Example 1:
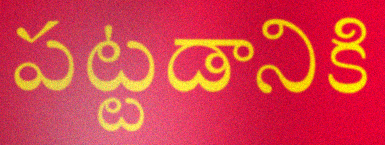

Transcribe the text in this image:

పట్టడానికి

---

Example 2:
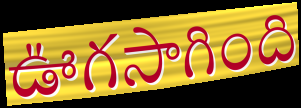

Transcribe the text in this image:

ఊగసాగింది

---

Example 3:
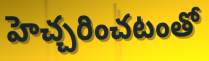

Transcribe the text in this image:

హెచ్చరించటంతో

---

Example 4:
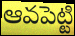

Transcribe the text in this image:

ఆవపెట్టి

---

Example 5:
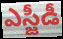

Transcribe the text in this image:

ఎస్జీడీ